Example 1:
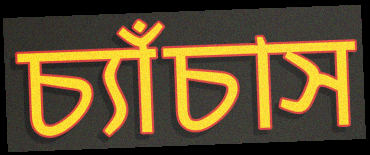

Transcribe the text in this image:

চ্যাঁচাস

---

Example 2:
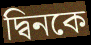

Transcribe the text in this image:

দ্বিনকে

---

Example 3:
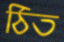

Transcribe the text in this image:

ঠিত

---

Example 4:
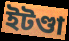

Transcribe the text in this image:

ইটণ্ডা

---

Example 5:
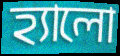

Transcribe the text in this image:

হ্যালো